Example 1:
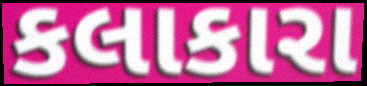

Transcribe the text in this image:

કલાકારા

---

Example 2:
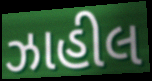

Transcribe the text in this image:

ઝાહીલ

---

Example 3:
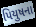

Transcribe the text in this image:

પિયુષના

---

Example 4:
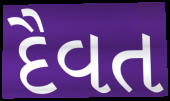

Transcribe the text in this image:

દૈવત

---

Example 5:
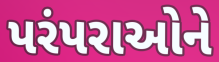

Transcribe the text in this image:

પરંપરાઓને